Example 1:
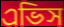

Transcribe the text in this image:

এভিস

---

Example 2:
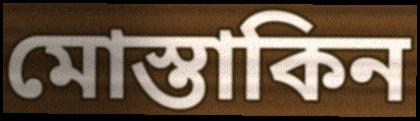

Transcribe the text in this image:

মোস্তাকিন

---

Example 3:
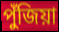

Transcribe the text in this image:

পুঁজিয়া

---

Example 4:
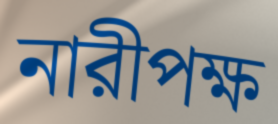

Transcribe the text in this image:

নারীপক্ষ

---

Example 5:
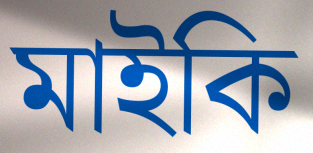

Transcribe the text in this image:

মাইকি